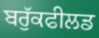
ਬਰੁੱਕਫੀਲਡ